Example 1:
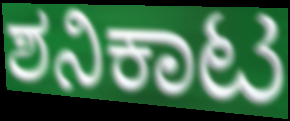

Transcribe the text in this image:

ಶನಿಕಾಟ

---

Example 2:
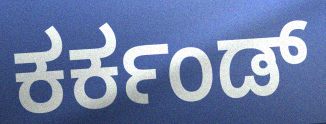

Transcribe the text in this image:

ಕರ್ಕಂಡ್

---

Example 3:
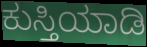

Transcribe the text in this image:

ಕುಸ್ತಿಯಾಡಿ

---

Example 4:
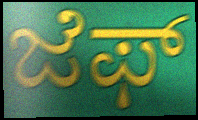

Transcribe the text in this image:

ಜೆಫ್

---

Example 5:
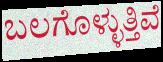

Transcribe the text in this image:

ಬಲಗೊಳ್ಳುತ್ತಿವೆ